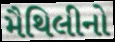
મૈથિલીનો